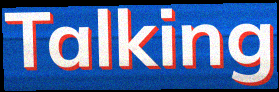
Talking